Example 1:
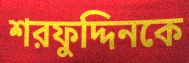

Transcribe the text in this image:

শরফুদ্দিনকে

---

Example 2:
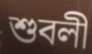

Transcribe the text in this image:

শুবলী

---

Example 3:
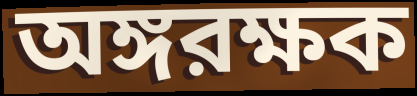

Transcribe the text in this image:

অঙ্গরক্ষক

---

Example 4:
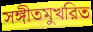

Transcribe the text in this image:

সঙ্গীতমুখরিত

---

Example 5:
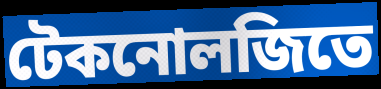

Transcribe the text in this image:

টেকনোলজিতে